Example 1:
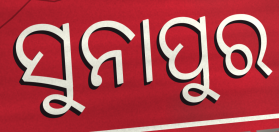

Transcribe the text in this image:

ସୁନାପୁର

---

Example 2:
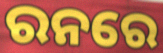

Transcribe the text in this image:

ରନରେ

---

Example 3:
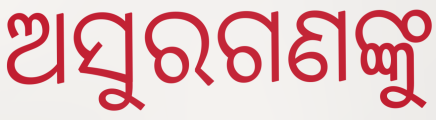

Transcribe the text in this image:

ଅସୁରଗଣଙ୍କୁ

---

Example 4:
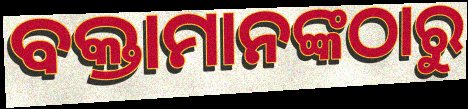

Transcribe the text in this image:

ବକ୍ତାମାନଙ୍କଠାରୁ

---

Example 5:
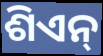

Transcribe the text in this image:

ଶିଏନ୍